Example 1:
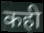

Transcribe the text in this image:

कही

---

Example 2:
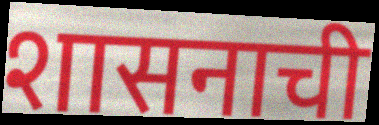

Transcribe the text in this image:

शासनाची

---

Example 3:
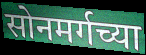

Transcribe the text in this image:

सोनमर्गच्या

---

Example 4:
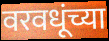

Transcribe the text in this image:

वरवधूंच्या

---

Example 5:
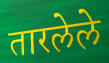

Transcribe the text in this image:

तारलेले